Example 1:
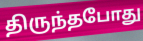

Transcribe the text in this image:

திருந்தபோது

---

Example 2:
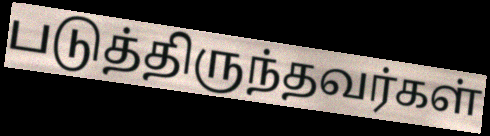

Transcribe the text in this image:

படுத்திருந்தவர்கள்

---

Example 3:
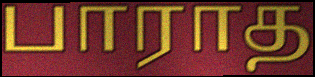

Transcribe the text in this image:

பாராத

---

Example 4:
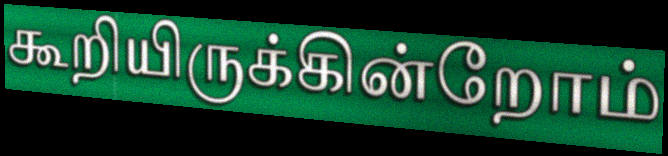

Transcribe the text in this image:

கூறியிருக்கின்றோம்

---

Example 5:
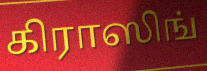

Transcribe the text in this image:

கிராஸிங்